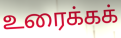
உரைக்கக்